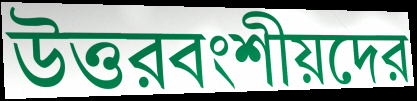
উত্তরবংশীয়দের